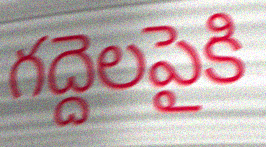
గద్దెలపైకి